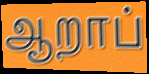
ஆறாப்